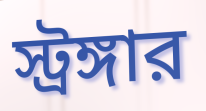
স্ট্রঙ্গার